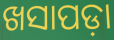
ଖସାପଡ଼ା